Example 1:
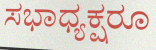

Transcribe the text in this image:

ಸಭಾಧ್ಯಕ್ಷರೂ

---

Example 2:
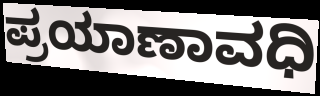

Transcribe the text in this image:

ಪ್ರಯಾಣಾವಧಿ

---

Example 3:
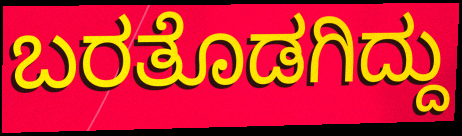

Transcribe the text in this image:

ಬರತೊಡಗಿದ್ದು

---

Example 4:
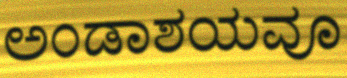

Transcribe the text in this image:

ಅಂಡಾಶಯವೂ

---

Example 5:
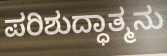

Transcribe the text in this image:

ಪರಿಶುದ್ಧಾತ್ಮನು